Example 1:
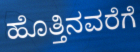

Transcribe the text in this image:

ಹೊತ್ತಿನವರೆಗೆ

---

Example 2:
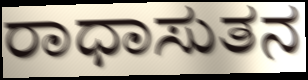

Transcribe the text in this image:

ರಾಧಾಸುತನ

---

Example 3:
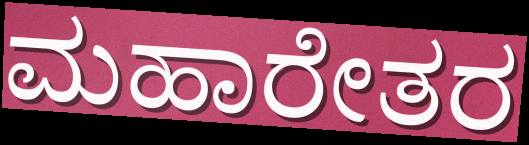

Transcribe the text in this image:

ಮಹಾರೇತರ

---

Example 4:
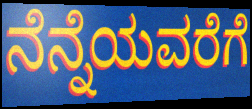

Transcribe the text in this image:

ನೆನ್ನೆಯವರೆಗೆ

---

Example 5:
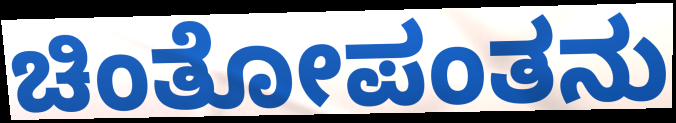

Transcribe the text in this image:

ಚಿಂತೋಪಂತನು